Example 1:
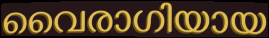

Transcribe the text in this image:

വൈരാഗിയായ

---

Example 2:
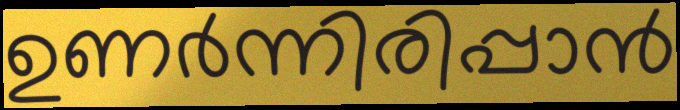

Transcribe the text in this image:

ഉണർന്നിരിപ്പാൻ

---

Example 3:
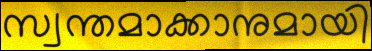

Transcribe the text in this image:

സ്വന്തമാക്കാനുമായി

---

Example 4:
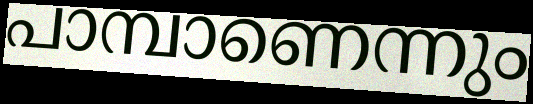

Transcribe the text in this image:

പാമ്പാണെന്നും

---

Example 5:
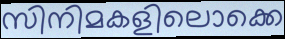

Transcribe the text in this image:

സിനിമകളിലൊക്കെ